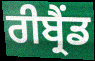
ਰੀਬ੍ਰੈਂਡ